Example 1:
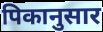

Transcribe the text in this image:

पिकानुसार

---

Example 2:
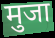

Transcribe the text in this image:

मुजा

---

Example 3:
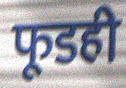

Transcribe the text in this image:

फूडही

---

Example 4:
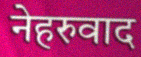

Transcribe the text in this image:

नेहरुवाद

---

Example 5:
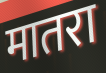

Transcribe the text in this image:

मातरा